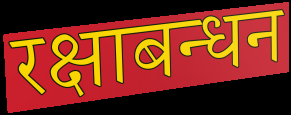
रक्षाबन्धन